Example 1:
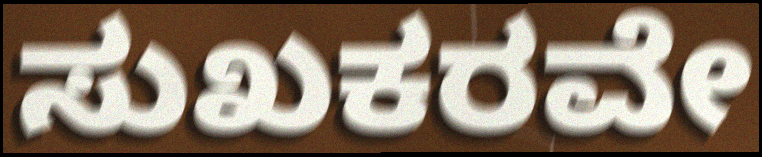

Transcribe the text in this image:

ಸುಖಕರವೇ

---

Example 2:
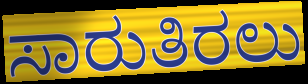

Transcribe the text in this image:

ಸಾರುತಿರಲು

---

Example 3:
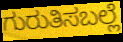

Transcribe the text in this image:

ಗುರುತಿಸಬಲ್ಲೆ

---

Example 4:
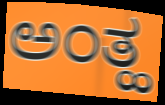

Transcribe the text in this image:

ಅಂತ್ಹ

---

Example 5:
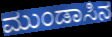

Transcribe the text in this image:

ಮುಂಡಾಸಿನ